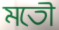
মতৌ